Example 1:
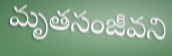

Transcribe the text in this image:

మృతసంజీవని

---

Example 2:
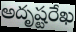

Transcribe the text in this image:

అదృష్టరేఖ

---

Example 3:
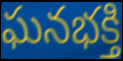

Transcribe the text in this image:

ఘనభక్తి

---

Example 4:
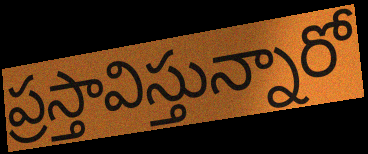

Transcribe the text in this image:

ప్రస్తావిస్తున్నారో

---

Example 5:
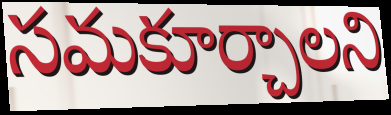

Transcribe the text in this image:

సమకూర్చాలని